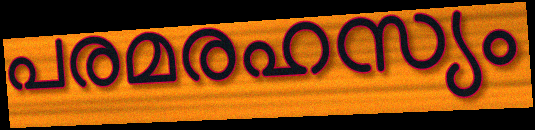
പരമരഹസ്യം